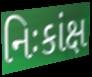
નિઃકાંક્ષ